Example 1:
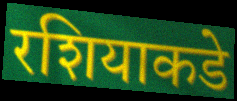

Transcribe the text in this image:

रशियाकडे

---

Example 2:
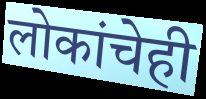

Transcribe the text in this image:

लोकांचेही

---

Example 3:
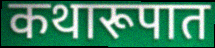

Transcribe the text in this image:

कथारूपात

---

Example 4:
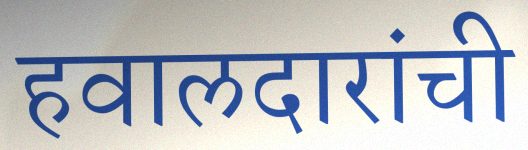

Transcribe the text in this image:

हवालदारांची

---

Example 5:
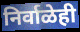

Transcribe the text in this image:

निर्वाळेही